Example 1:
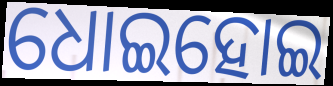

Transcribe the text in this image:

ଧୋଇହୋଇ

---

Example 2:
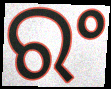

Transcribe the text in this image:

ରଂ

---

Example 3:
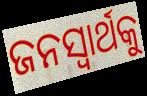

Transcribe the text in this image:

ଜନସ୍ବାର୍ଥକୁ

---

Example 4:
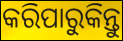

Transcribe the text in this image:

କରିପାରୁକିନ୍ତୁ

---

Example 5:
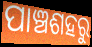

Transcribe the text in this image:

ପାଞ୍ଚଶହରୁ